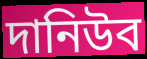
দানিউব